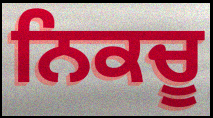
ਨਿਕਚੂ